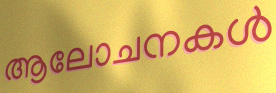
ആലോചനകൾ